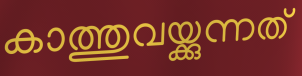
കാത്തുവയ്ക്കുന്നത്